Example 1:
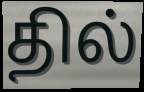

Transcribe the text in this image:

தில்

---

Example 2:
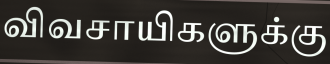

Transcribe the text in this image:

விவசாயிகளுக்கு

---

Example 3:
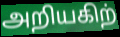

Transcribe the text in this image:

அறியகிற்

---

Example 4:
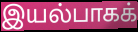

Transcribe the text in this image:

இயல்பாகக்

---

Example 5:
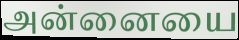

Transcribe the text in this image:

அன்னையை